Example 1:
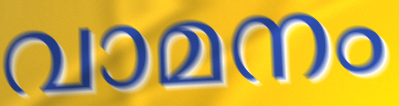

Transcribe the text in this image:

വാമനം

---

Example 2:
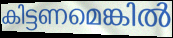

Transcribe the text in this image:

കിട്ടണമെങ്കിൽ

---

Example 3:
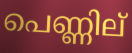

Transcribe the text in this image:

പെണ്ണില്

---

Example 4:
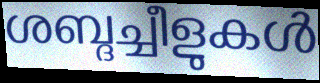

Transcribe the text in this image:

ശബ്ദച്ചീളുകൾ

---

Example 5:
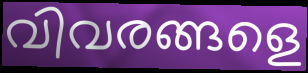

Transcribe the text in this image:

വിവരങ്ങളെ